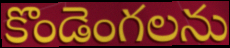
కొండెంగలను